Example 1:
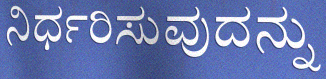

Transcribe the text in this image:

ನಿರ್ಧರಿಸುವುದನ್ನು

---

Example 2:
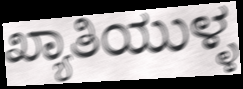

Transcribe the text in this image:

ಖ್ಯಾತಿಯುಳ್ಳ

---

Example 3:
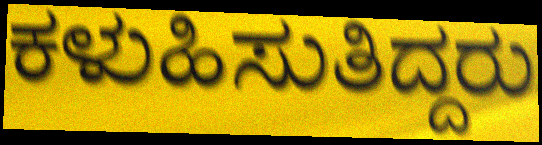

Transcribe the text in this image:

ಕಳುಹಿಸುತಿದ್ದರು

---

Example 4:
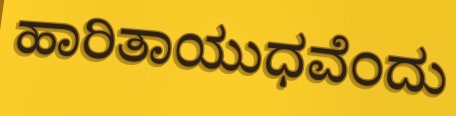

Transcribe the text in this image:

ಹಾರಿತಾಯುಧವೆಂದು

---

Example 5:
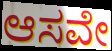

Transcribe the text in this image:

ಆಸವೇ